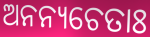
ଅନନ୍ୟଚେତାଃ